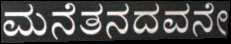
ಮನೆತನದವನೇ